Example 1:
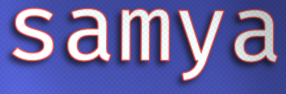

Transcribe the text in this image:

samya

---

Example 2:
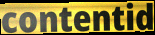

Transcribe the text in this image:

contentid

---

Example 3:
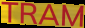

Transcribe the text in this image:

TRAM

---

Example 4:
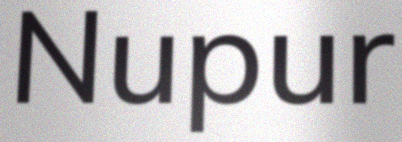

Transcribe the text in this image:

Nupur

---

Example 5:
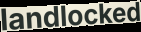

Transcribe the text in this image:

landlocked